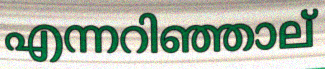
എന്നറിഞ്ഞാല്